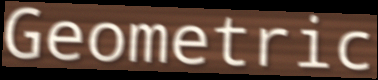
Geometric